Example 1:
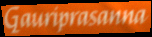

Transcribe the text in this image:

Gauriprasanna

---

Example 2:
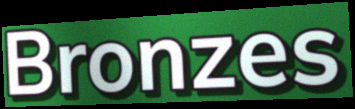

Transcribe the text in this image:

Bronzes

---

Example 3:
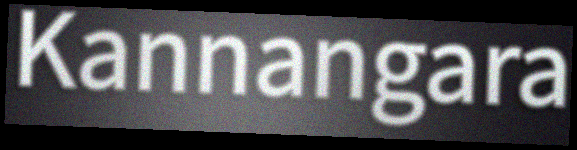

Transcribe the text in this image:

Kannangara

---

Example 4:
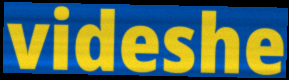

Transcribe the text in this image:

videshe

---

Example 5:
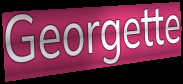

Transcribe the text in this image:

Georgette